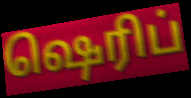
ஷெரிப்